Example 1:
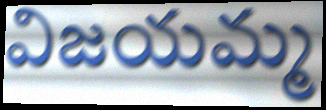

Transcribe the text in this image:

విజయమ్మ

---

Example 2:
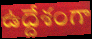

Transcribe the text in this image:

ఉద్దేశంగా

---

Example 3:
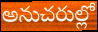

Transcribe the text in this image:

అనుచరుల్లో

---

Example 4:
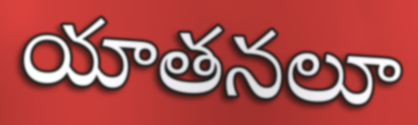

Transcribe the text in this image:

యాతనలూ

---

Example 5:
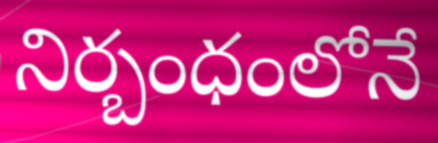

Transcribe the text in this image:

నిర్బంధంలోనే